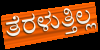
ತೆರಳುತ್ತಿಲ್ಲ